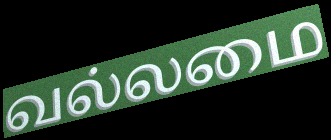
வல்லமை